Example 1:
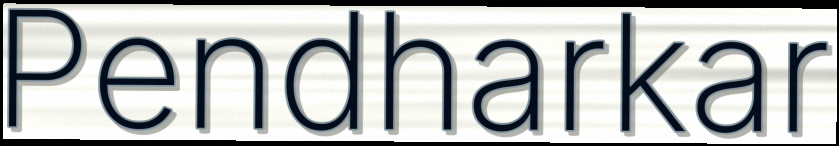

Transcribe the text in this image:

Pendharkar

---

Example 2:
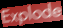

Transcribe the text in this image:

Explode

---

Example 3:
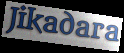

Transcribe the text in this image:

Jikadara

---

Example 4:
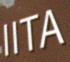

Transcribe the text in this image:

IITA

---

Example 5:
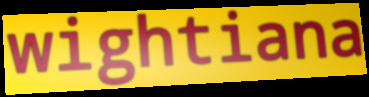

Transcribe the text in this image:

wightiana